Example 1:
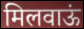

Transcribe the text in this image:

मिलवाऊं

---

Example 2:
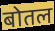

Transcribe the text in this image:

बोतल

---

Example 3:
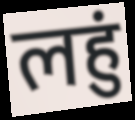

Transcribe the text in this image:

लहुं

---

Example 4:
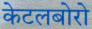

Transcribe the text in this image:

केटलबोरो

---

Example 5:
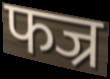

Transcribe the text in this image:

फज्र